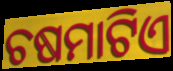
ଚଷମାଟିଏ